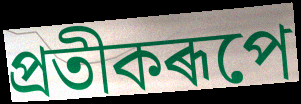
প্ৰতীকৰূপে